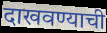
दाखवण्याची